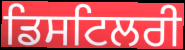
ਡਿਸਟਿਲਰੀ